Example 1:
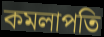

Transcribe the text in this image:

কমলাপতি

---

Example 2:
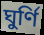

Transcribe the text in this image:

ঘুর্ণি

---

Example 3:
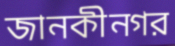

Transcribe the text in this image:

জানকীনগর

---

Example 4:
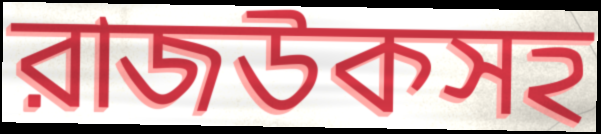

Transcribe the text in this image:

রাজউকসহ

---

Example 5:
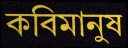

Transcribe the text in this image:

কবিমানুষ